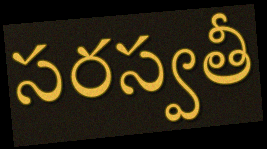
సరస్వతీ